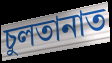
চুলতানাত